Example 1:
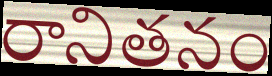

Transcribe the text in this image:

రానితనం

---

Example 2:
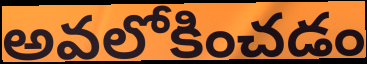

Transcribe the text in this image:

అవలోకించడం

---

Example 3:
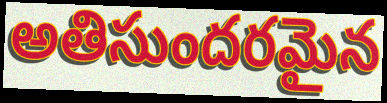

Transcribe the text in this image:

అతిసుందరమైన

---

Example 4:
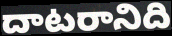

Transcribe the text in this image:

దాటరానిది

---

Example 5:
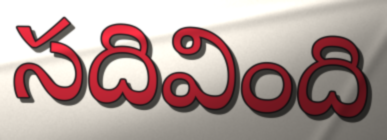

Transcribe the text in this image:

సదివింది